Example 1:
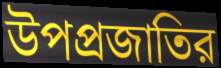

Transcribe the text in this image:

উপপ্রজাতির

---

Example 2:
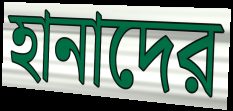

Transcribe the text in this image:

হানাদের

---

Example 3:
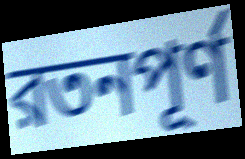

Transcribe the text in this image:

রতনপূর্ণ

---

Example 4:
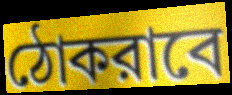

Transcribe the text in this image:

ঠোকরাবে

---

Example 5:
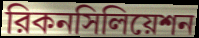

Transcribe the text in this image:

রিকনসিলিয়েশন